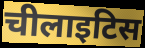
चीलाइटिस